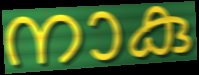
നാകു